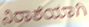
ನಿರಾಶೆಯಾಗಿ